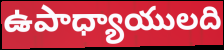
ఉపాధ్యాయులది